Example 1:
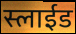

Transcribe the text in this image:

स्लाईड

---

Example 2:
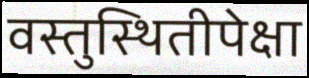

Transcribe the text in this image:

वस्तुस्थितीपेक्षा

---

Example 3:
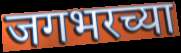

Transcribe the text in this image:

जगभरच्या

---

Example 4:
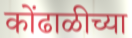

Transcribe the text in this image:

कोंढाळीच्या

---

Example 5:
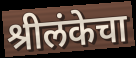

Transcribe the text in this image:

श्रीलंकेचा